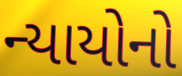
ન્યાયોનો